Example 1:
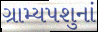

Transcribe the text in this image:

ગ્રામ્યપશુનાં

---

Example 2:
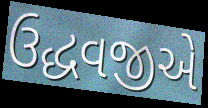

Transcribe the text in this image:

ઉદ્ધવજીએ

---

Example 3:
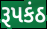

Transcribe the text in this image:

રૂપકંઠ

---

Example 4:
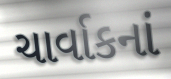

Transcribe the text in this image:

ચાર્વાકનાં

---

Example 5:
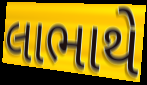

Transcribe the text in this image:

લાભાથે